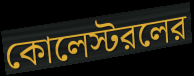
কোলেস্টরলের